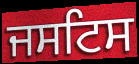
ਜਸਟਿਸ